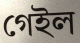
গেইল